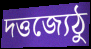
দত্তজ্যেঠু